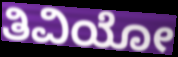
ತಿವಿಯೋ